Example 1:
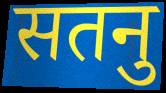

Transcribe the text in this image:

सतनु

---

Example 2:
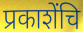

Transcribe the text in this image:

प्रकाशेंचि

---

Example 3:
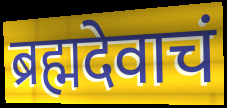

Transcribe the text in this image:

ब्रह्मदेवाचं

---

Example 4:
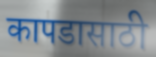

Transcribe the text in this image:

कापडासाठी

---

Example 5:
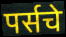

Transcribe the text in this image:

पर्सचे